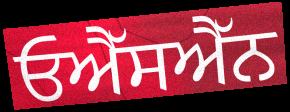
ਓਐੱਸਐੱਨ